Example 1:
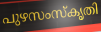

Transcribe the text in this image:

പുഴസംസ്കൃതി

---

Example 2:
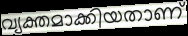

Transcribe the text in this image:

വ്യക്തമാക്കിയതാണ്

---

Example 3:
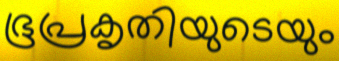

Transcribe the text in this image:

ഭൂപ്രകൃതിയുടെയും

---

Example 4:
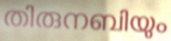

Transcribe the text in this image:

തിരുനബിയും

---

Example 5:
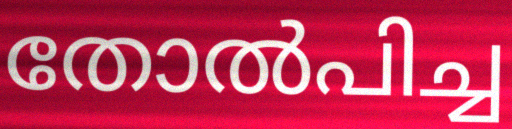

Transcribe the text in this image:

തോൽപിച്ച